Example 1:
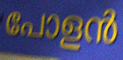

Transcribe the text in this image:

പോളൻ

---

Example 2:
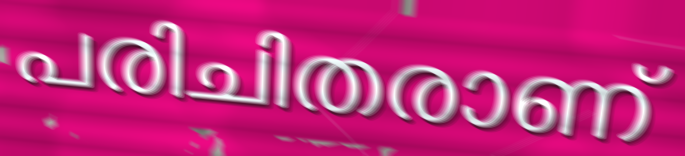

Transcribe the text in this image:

പരിചിതരാണ്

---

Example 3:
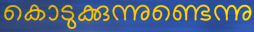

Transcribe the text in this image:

കൊടുക്കുന്നുണ്ടെന്നു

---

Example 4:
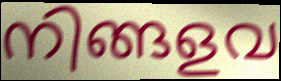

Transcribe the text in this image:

നിങ്ങളവ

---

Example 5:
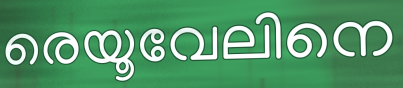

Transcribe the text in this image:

രെയൂവേലിനെ